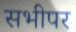
सभीपर